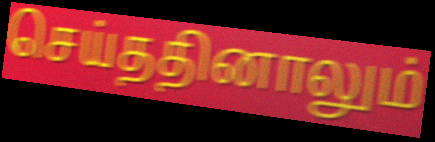
செய்ததினாலும்